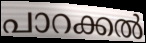
പാറക്കൽ